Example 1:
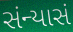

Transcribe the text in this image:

સંન્યાસં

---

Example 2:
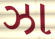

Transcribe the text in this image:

ઝા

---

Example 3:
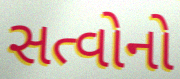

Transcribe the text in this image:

સત્વોનો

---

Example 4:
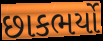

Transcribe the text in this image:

છાકભર્યો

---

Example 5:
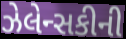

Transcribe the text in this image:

ઝેલેન્સકીની